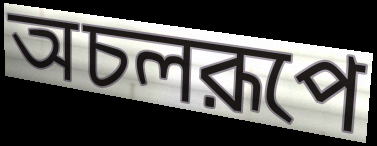
অচলরূপে